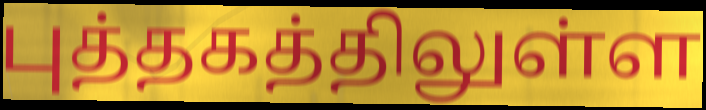
புத்தகத்திலுள்ள